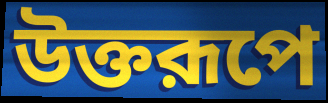
উক্তরূপে